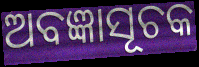
ଅବଜ୍ଞାସୂଚକ